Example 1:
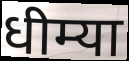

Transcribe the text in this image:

धीम्या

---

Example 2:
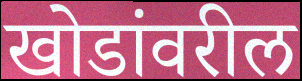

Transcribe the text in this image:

खोडांवरील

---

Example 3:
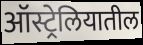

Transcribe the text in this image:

ऑस्ट्रेलियातील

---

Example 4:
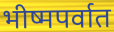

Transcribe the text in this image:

भीष्मपर्वात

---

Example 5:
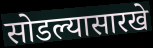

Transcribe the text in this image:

सोडल्यासारखे